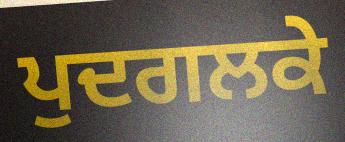
ਪੁਦਗਲਕੇ